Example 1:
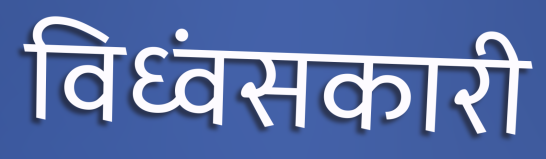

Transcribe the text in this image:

विध्वंसकारी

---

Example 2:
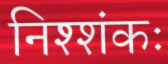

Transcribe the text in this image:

निश्शंकः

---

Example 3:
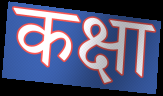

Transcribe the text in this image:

कक्षा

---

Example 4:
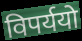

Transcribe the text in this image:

विपर्ययो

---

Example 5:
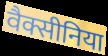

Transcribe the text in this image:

वैक्सीनिया